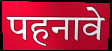
पहनावे